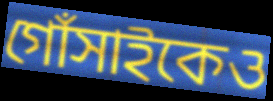
গোঁসাইকেও